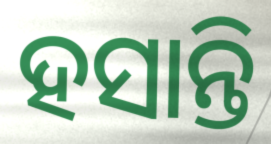
ହସାନ୍ତି